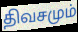
திவசமும்